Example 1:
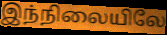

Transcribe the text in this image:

இந்நிலையிலே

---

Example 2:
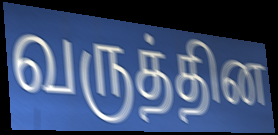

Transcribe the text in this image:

வருத்தின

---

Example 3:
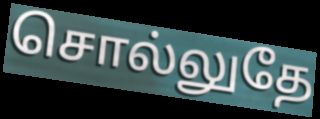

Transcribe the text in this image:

சொல்லுதே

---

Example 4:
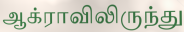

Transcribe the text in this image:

ஆக்ராவிலிருந்து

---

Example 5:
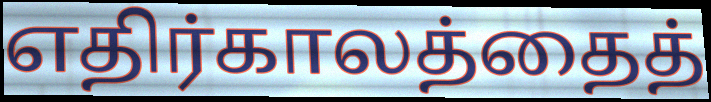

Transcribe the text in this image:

எதிர்காலத்தைத்